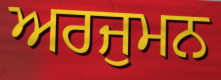
ਅਰਜੁਮਨ